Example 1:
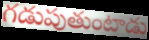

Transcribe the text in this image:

గడుపుతుంటాడు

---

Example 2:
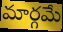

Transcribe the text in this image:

మార్గమే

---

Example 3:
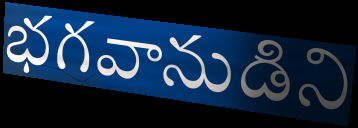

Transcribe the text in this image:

భగవానుడిని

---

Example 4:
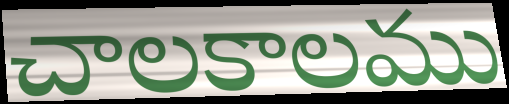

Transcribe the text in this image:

చాలకాలము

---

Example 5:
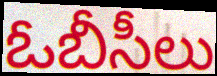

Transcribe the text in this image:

ఓబీసీలు